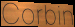
Corbin